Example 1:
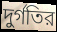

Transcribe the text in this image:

দুর্গতির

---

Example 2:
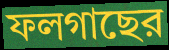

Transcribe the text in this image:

ফলগাছের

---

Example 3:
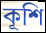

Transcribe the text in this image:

কূশি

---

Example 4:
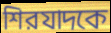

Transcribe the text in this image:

শিরযাদকে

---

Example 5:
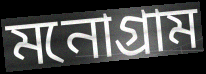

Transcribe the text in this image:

মনোগ্রাম